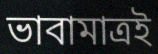
ভাবামাত্রই